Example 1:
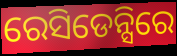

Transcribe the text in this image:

ରେସିଡେନ୍ସିରେ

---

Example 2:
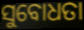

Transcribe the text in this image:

ସୁବୋଧତା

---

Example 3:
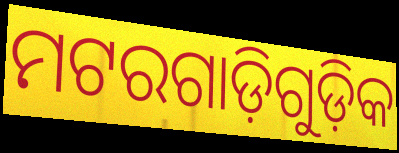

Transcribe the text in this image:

ମଟରଗାଡ଼ିଗୁଡ଼ିକ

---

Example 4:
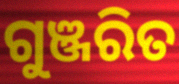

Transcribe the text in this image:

ଗୁଞ୍ଜରିତ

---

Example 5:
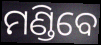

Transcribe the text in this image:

ମଣ୍ଡିବେ